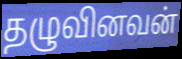
தழுவினவன்